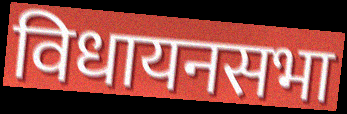
विधायनसभा